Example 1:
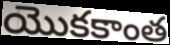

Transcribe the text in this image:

యొకకాంత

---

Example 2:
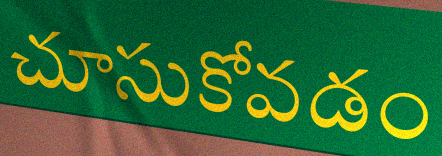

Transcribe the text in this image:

చూసుకోవడం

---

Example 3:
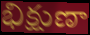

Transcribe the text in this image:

భిక్షుణా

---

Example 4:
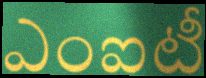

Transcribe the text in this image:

ఎంఐటీ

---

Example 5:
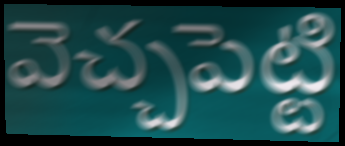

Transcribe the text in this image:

వెచ్చపెట్టి